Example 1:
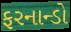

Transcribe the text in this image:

ફરનાન્ડો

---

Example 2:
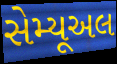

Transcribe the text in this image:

સેમ્યૂઅલ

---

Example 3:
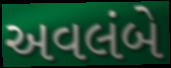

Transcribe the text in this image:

અવલંબે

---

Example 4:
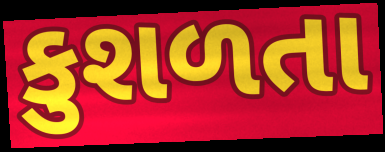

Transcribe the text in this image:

કુશળતા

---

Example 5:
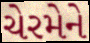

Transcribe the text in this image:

ચેરમેને